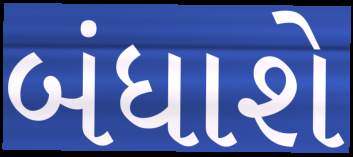
બંધાશે